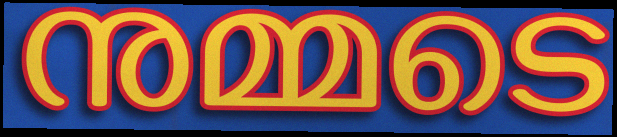
നുമ്മടെ